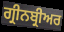
ਗ੍ਰੀਨਬ੍ਰੀਅਰ